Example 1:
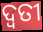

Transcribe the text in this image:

ଦ୍ଵତୀ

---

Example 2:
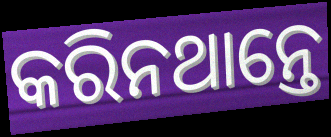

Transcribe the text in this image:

କରିନଥାନ୍ତେ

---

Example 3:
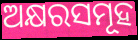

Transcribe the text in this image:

ଅକ୍ଷରସମୂହ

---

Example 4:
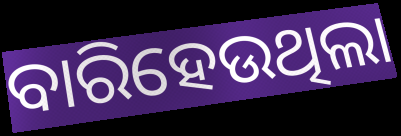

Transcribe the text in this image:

ବାରିହେଉଥିଲା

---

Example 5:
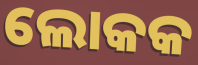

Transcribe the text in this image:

ଲୋକକ